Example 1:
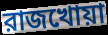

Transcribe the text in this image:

রাজখোয়া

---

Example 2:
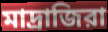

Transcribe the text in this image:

মাদ্রাজিরা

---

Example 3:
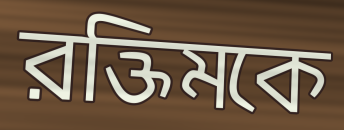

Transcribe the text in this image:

রক্তিমকে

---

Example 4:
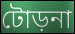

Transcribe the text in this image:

টোড়না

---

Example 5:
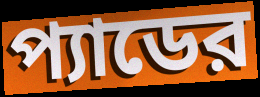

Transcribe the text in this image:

প্যাডের